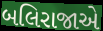
બલિરાજાએ